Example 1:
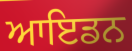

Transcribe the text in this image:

ਆਇਡਨ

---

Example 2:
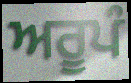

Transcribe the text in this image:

ਅਰੂਪੰ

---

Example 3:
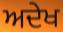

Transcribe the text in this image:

ਅਦੇਖ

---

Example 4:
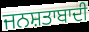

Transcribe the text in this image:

ਜਨਸ਼ਤਾਬਾਦੀ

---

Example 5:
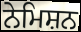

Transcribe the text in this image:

ਨੇਮਿਸ਼ਨ